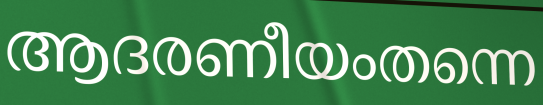
ആദരണീയംതന്നെ